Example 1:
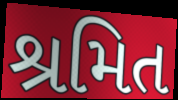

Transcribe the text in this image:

શ્રમિત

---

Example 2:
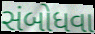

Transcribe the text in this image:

સંબોધવા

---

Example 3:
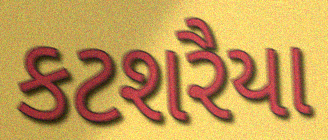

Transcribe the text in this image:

કટશરૈયા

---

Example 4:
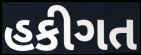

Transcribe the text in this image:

હકીગત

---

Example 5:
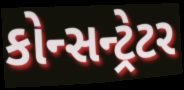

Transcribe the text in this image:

કોન્સન્ટ્રેટર